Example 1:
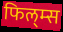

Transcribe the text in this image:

फिल्म्स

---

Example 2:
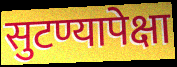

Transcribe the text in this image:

सुटण्यापेक्षा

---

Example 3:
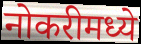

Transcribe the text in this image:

नोकरीमध्ये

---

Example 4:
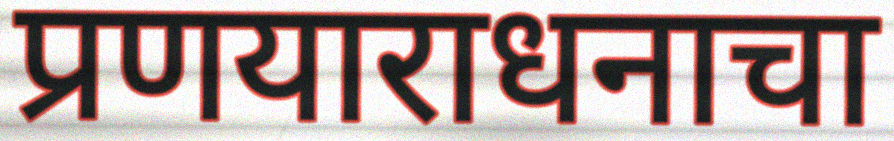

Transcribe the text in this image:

प्रणयाराधनाचा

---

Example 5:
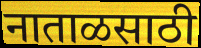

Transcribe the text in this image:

नाताळसाठी